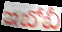
ఇబోబీ